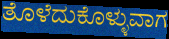
ತೊಳೆದುಕೊಳ್ಳುವಾಗ